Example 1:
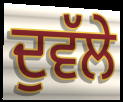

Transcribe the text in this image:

ਦੁਵੱਲੇ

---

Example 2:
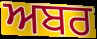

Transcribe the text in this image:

ਅਬਰ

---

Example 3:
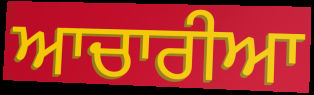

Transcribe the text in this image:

ਆਚਾਰੀਆ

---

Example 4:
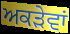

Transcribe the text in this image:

ਅਕੜੇਵਾਂ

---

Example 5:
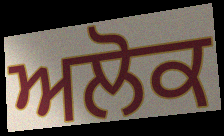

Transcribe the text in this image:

ਅਲੋਕ